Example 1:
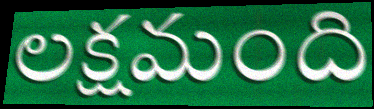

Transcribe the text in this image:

లక్షమంది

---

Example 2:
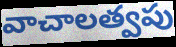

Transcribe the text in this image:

వాచాలత్వపు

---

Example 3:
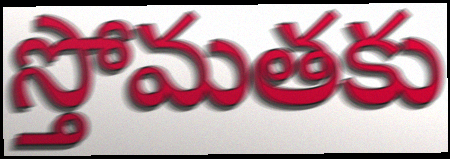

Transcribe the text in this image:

స్తోమతకు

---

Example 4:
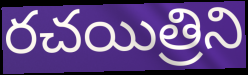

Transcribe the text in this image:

రచయిత్రిని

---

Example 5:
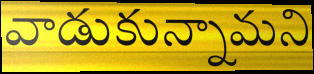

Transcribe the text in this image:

వాడుకున్నామని